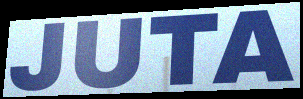
JUTA